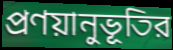
প্রণয়ানুভূতির